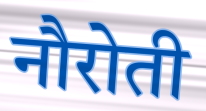
नौरोती